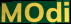
MOdi